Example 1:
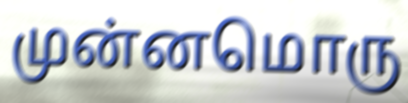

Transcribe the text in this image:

முன்னமொரு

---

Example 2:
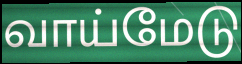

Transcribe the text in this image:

வாய்மேடு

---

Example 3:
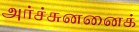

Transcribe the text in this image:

அர்ச்சுனனைக்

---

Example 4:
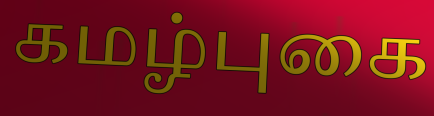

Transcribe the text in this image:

கமழ்புகை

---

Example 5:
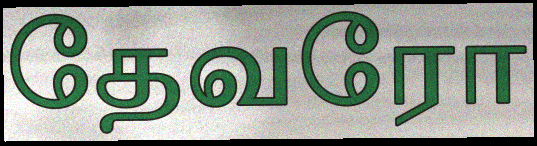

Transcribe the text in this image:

தேவரோ